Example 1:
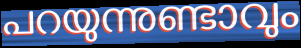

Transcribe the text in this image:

പറയുന്നുണ്ടാവും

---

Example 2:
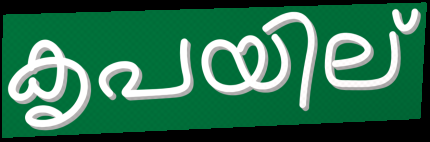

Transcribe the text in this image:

കൃപയില്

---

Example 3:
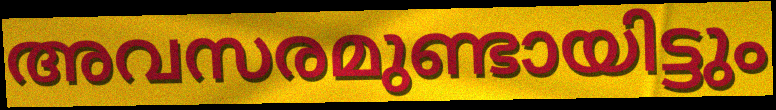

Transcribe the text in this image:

അവസരമുണ്ടായിട്ടും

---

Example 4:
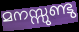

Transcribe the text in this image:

മനസ്സുണ്ടു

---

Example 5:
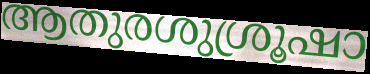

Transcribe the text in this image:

ആതുരശുശ്രൂഷാ